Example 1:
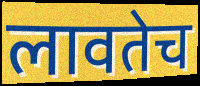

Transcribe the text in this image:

लावतेच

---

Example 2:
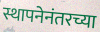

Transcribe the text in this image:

स्थापनेनंतरच्या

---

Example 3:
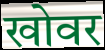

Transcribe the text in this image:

खोवर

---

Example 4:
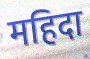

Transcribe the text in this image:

महिदा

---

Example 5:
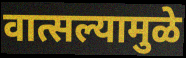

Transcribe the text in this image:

वात्सल्यामुळे